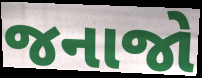
જનાજો